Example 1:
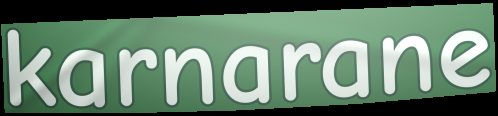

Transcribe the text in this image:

karnarane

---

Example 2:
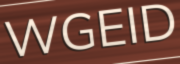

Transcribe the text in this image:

WGEID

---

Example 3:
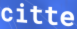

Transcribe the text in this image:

citte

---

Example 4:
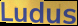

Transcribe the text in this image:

Ludus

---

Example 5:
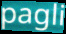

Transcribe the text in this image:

pagli